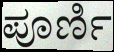
ಪೂರ್ಣಿ